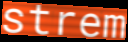
strem